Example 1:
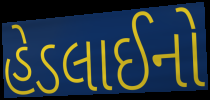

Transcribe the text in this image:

હેડલાઈનો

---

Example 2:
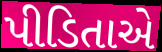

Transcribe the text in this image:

પીડિતાએ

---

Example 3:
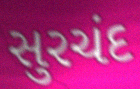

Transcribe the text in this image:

સુરચંદ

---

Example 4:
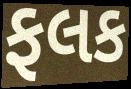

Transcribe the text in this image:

ફલક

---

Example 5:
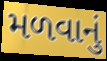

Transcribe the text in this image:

મળવાનું